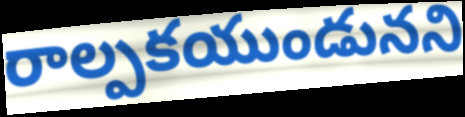
రాల్పకయుండునని